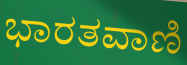
ಭಾರತವಾಣಿ